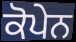
ਕੋਪੇਨ